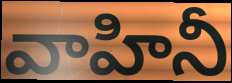
వాహినీ